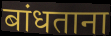
बांधताना